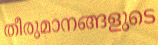
തീരുമാനങ്ങളുടെ